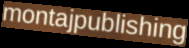
montajpublishing